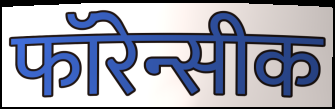
फॉरेन्सीक